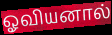
ஓவியனால்